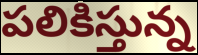
పలికిస్తున్న